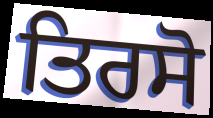
ਤਿਰਸੋ